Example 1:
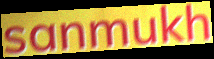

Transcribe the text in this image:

sanmukh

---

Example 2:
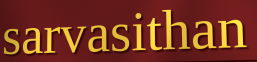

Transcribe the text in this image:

sarvasithan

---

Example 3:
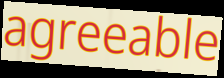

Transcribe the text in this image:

agreeable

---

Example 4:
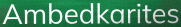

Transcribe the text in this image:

Ambedkarites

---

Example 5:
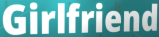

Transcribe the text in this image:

Girlfriend